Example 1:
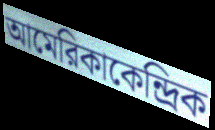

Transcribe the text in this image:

আমেরিকাকেন্দ্রিক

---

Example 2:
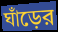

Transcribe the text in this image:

ঘাঁড়ের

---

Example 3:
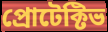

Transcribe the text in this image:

প্রোটেক্টিভ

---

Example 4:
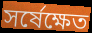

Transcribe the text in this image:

সর্ষেক্ষেত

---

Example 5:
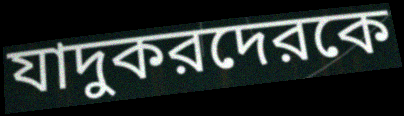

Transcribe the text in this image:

যাদুকরদেরকে